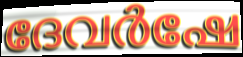
ദേവർഷേ